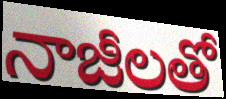
నాజీలతో